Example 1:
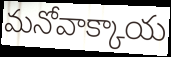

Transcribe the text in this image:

మనోవాక్కాయ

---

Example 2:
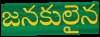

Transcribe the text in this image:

జనకులైన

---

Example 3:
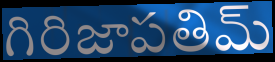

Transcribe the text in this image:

గిరిజాపతిమ్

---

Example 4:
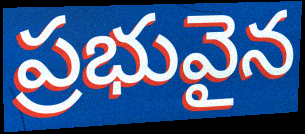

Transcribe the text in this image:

ప్రభువైన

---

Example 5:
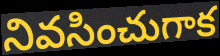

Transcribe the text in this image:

నివసించుగాక